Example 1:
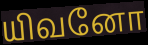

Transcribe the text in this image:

யிவனோ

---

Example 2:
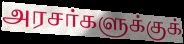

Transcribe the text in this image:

அரசர்களுக்குக்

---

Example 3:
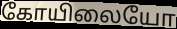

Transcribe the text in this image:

கோயிலையோ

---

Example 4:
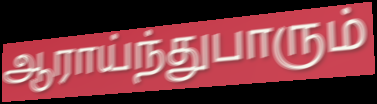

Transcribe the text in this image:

ஆராய்ந்துபாரும்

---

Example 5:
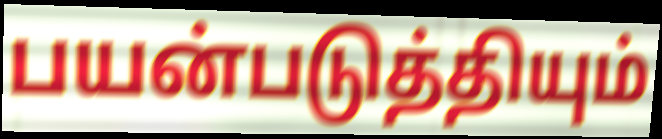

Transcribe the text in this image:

பயன்படுத்தியும்